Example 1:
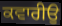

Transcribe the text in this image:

ਕਵਾਰੀਉ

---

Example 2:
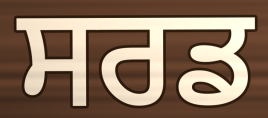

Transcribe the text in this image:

ਸਰਡ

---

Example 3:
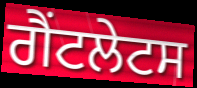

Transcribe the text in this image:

ਗੈਂਟਲੇਟਸ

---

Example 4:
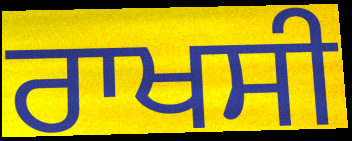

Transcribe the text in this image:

ਰਾਖਸੀ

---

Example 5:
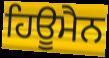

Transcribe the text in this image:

ਹਿਊਮੈਨ